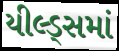
યીલ્ડ્સમાં